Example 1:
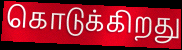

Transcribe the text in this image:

கொடுக்கிறது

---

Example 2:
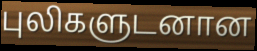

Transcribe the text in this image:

புலிகளுடனான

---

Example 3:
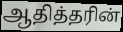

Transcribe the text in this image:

ஆதித்தரின்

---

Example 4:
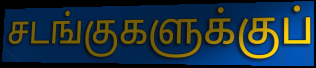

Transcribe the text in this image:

சடங்குகளுக்குப்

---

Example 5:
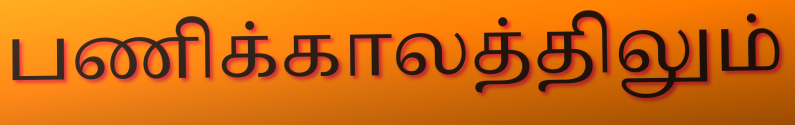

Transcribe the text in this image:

பணிக்காலத்திலும்